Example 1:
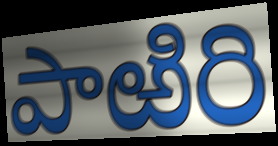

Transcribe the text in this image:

పాఱిరి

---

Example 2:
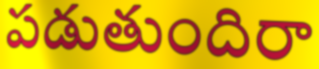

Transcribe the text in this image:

పడుతుందిరా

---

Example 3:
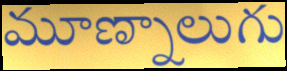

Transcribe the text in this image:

మూణ్నాలుగు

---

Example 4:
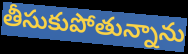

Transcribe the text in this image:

తీసుకుపోతున్నాను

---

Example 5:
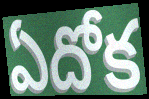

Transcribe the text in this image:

ఏదోక